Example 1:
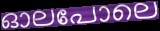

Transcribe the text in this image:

ഓലപോലെ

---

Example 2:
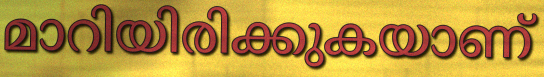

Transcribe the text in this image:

മാറിയിരിക്കുകയാണ്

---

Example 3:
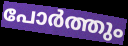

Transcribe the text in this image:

പോർത്തും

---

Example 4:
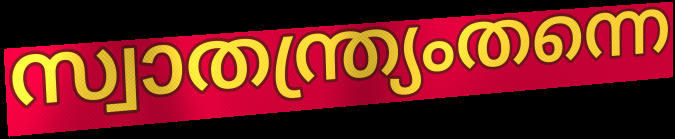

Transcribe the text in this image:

സ്വാതന്ത്ര്യംതന്നെ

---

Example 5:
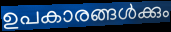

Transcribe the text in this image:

ഉപകാരങ്ങൾക്കും